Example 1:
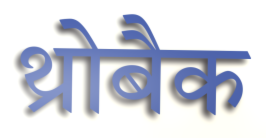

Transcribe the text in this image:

थ्रोबैक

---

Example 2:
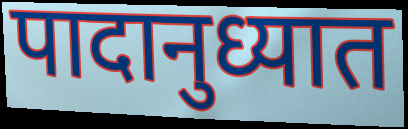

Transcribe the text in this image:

पादानुध्यात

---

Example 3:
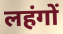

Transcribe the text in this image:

लहंगों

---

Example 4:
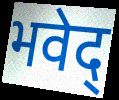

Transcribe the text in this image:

भवेद्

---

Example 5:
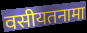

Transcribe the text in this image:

वसीयतनामा